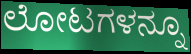
ಲೋಟಗಳನ್ನೂ